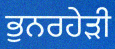
ਭੁਨਰਹੇੜੀ